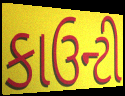
કાઉન્ટી